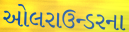
ઓલરાઉન્ડરના